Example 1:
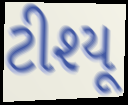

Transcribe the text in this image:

ટીશ્યૂ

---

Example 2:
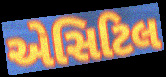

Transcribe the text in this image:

એસિટિલ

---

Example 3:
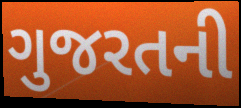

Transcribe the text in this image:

ગુજરતની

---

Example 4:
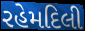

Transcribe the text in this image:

રહેમદિલી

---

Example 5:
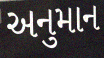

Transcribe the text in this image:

અનુમાન